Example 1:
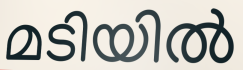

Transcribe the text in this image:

മടിയിൽ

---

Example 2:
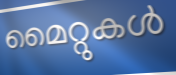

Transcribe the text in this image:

മൈറ്റുകൾ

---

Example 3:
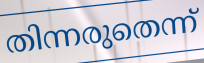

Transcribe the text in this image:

തിന്നരുതെന്ന്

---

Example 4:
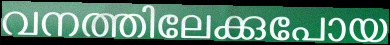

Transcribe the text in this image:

വനത്തിലേക്കുപോയ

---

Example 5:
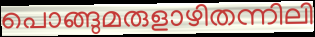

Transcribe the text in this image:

പൊങ്ങുമരുളാഴിതന്നിലി